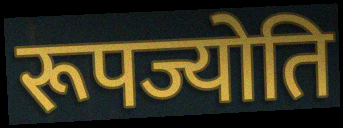
रूपज्योति